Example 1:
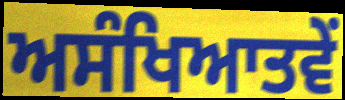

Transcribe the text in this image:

ਅਸੰਖਿਆਤਵੇਂ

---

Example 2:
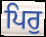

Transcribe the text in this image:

ਪਿਰੁ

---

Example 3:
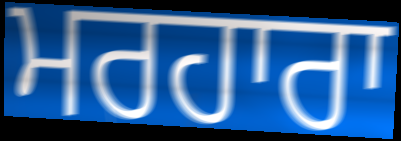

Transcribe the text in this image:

ਮਰਹਾਰਾ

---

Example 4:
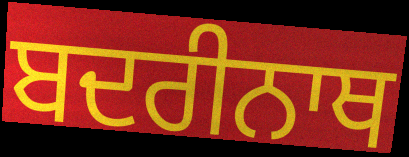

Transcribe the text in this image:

ਬਦਰੀਨਾਥ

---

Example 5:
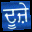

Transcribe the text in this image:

ਦੂਜ਼ੇ